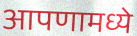
आपणामध्ये